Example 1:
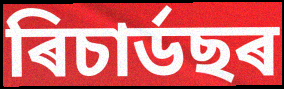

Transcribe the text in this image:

ৰিচাৰ্ডছৰ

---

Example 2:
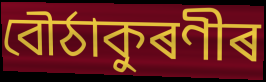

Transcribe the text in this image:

বৌঠাকুৰণীৰ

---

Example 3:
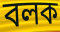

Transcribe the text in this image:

বলক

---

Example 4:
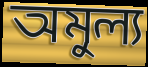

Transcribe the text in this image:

অমুল্য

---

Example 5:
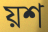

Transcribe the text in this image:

য়শ